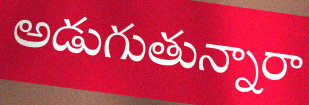
అడుగుతున్నారా